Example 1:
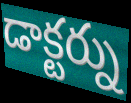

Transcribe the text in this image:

డాక్టర్ను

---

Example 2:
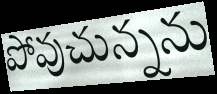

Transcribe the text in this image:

పోవుచున్నను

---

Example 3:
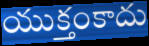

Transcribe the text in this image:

యుక్తంకాదు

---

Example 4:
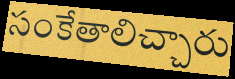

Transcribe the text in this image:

సంకేతాలిచ్చారు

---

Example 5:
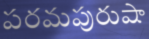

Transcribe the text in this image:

పరమపురుషా